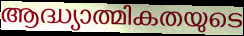
ആദ്ധ്യാത്മികതയുടെ